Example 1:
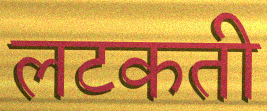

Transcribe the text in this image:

लटकती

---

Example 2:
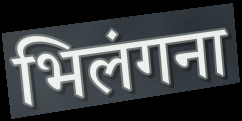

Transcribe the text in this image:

भिलंगना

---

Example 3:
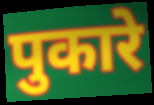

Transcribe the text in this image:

पुकारे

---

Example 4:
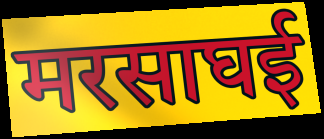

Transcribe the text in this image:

मरसाघई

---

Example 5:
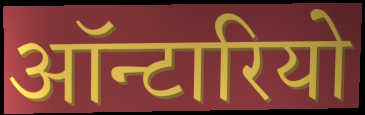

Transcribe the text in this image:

ऑन्टारियो